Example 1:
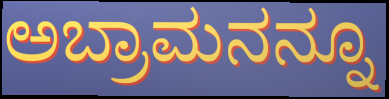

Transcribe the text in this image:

ಅಬ್ರಾಮನನ್ನೂ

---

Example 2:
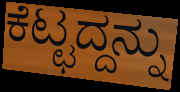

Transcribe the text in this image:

ಕೆಟ್ಟದ್ದನ್ನು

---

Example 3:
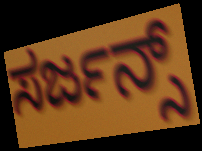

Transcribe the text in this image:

ಸರ್ಜನ್ಸ್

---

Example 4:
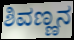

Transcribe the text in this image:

ಶಿವಣ್ಣನ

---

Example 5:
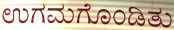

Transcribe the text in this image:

ಉಗಮಗೊಂಡಿತು